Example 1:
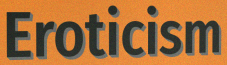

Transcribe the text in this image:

Eroticism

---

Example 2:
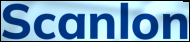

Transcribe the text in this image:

Scanlon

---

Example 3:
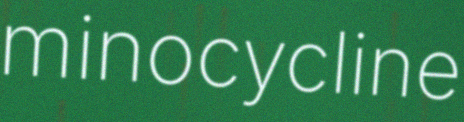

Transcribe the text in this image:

minocycline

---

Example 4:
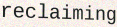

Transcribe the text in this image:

reclaiming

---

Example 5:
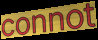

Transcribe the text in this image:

connot